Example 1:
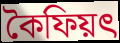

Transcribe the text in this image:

কৈফিয়ৎ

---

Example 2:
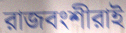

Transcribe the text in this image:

রাজবংশীরাই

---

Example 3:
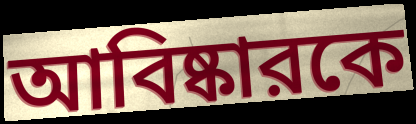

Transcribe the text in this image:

আবিষ্কারকে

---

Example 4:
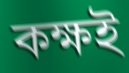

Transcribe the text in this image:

কক্ষই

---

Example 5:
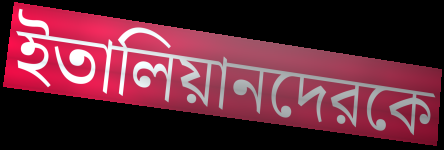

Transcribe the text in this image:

ইতালিয়ানদেরকে